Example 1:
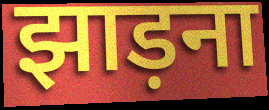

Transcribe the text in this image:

झाड़ना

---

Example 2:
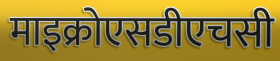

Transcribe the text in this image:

माइक्रोएसडीएचसी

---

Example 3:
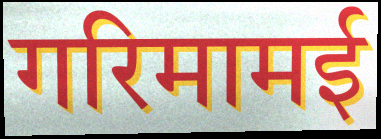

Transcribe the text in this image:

गरिमामई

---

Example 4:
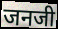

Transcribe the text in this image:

जनजी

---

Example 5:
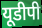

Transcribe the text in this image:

यूडीपी